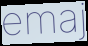
emaj